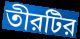
তীরটির